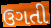
ઉગતી